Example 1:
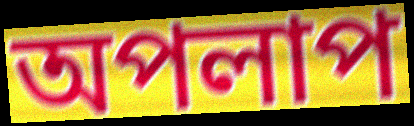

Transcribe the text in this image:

অপলাপ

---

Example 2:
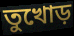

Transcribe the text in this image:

তুখোড়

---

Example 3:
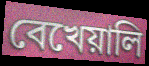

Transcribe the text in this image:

বেখেয়ালি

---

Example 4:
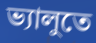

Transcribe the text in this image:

ভ্যালুতে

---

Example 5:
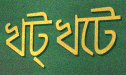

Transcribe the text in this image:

খট্‌খটে